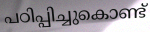
പഠിപ്പിച്ചുകൊണ്ട്